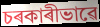
চৰকাৰীভাৱে